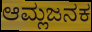
ಆಮ್ಲಜನಕ